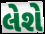
લેશે